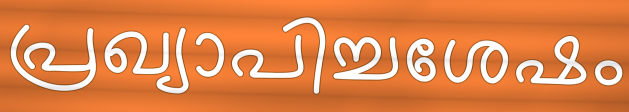
പ്രഖ്യാപിച്ചശേഷം